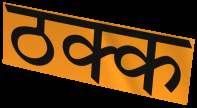
ठक्क